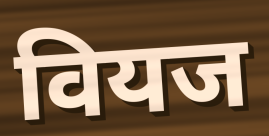
वियज